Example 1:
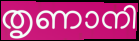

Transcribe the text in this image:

തൃണാനി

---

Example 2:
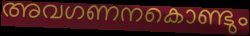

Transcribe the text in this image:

അവഗണനകൊണ്ടും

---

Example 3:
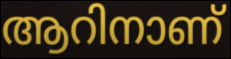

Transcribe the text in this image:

ആറിനാണ്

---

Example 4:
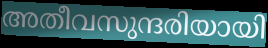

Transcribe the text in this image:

അതീവസുന്ദരിയായി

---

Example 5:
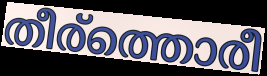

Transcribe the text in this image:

തീര്ത്തൊരീ